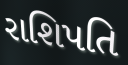
રાશિપતિ